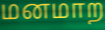
மனமாற